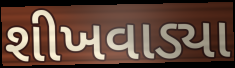
શીખવાડ્યા